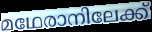
മഥേരാനിലേക്ക്